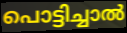
പൊട്ടിച്ചാൽ